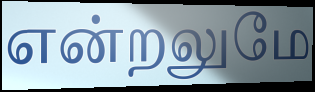
என்றலுமே